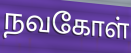
நவகோள்